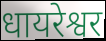
धायरेश्वर